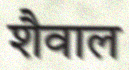
शैवाल